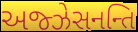
અજ્ઝેસનન્તિ